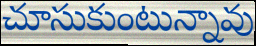
చూసుకుంటున్నావు